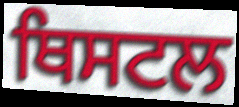
ਥਿਸਟਲ